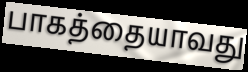
பாகத்தையாவது